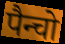
पैन्चो